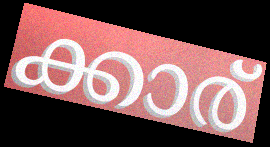
ക്കാര്